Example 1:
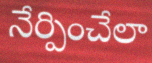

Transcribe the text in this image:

నేర్పించేలా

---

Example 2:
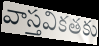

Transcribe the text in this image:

వాస్తవికతకు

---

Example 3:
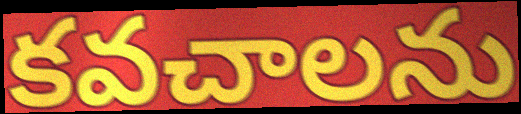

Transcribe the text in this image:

కవచాలను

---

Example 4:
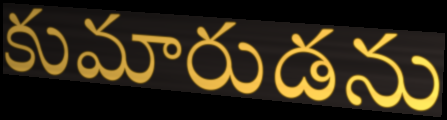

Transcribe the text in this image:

కుమారుడను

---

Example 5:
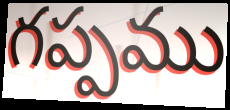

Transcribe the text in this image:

గప్పము